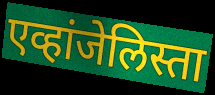
एव्हांजेलिस्ता